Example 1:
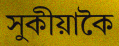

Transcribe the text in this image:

সুকীয়াকৈ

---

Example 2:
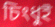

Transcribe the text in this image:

চিংধুই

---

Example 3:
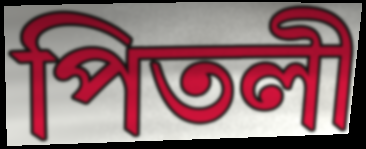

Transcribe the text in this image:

পিতলী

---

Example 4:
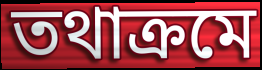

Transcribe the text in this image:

তথাক্ৰমে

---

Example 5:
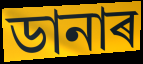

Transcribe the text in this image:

ডানাৰ